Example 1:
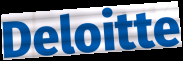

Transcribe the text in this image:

Deloitte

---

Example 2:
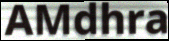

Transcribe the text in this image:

AMdhra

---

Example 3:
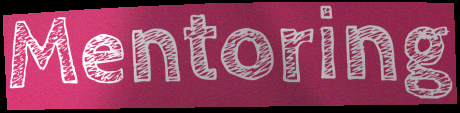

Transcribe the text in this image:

Mentoring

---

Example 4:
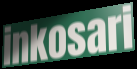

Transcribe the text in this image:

inkosari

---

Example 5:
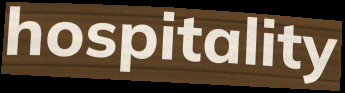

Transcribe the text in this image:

hospitality